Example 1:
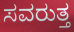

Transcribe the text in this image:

ಸವರುತ್ತ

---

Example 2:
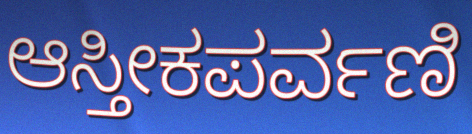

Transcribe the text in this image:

ಆಸ್ತೀಕಪರ್ವಣಿ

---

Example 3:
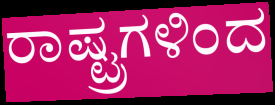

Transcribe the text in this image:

ರಾಷ್ಟ್ರಗಳಿಂದ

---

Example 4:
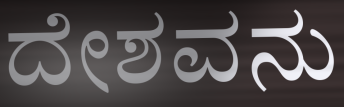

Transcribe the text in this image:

ದೇಶವನು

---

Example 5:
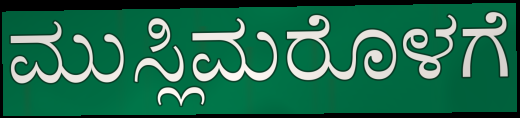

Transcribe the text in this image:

ಮುಸ್ಲಿಮರೊಳಗೆ